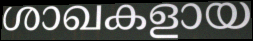
ശാഖകളായ